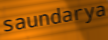
saundarya